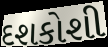
દશકોશી